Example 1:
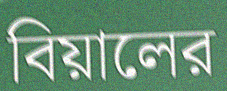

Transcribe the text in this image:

বিয়ালের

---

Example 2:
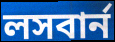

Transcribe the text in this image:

লসবার্ন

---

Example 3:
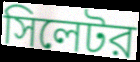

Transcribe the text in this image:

সিলেটর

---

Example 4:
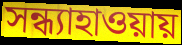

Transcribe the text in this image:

সন্ধ্যাহাওয়ায়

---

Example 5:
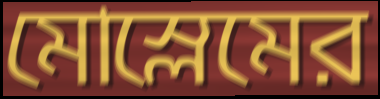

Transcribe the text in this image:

মোস্লেমের